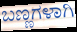
ಬಣ್ಣಗಳಾಗಿ